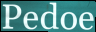
Pedoe